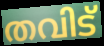
തവിട്